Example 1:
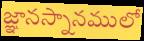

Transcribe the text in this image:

జ్ఞానస్నానములో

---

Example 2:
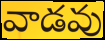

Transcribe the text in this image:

వాడవు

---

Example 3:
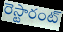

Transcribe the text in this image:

రెస్టారంట్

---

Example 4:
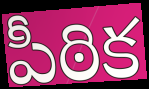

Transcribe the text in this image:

పీఠిక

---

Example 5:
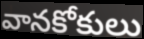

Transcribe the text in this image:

వానకోకులు